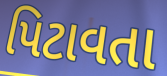
પિટાવતા